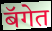
बॅगेत